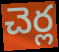
చెర్ల